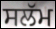
ਸਲੱਮ